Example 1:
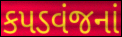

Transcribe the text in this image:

કપડવંજનાં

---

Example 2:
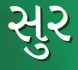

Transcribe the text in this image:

સુર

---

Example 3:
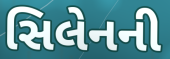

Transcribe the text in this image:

સિલેનની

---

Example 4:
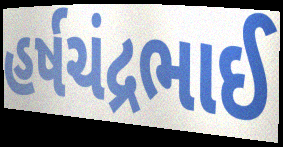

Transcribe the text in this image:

હર્ષચંદ્રભાઈ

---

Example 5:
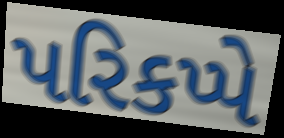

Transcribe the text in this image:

પરિકપ્પે